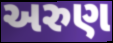
અરુણ